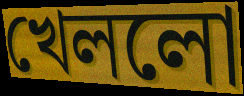
খেললো